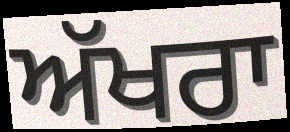
ਅੱਖਰਾ